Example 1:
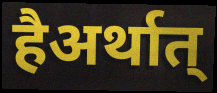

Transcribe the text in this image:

हैअर्थात्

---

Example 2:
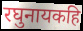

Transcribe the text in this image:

रघुनायकहि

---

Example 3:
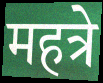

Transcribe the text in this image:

महत्रे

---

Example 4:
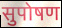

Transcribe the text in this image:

सुपोषण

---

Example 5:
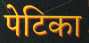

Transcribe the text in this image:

पेटिका